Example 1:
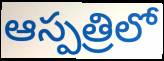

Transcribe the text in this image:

ఆస్పత్రిలో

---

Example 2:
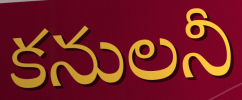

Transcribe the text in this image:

కనులనీ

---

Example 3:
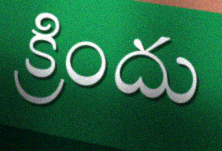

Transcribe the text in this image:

క్రిందు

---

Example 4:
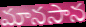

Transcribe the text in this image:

మానసాన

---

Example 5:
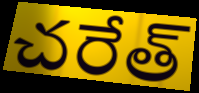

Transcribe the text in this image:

చరేత్